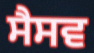
ਸੈਸਵ